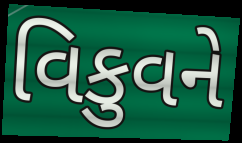
વિકુવને